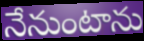
నేనుంటాను